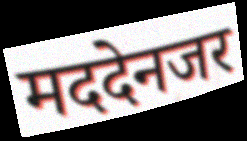
मददेनजर